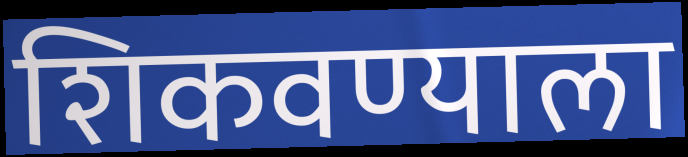
शिकवण्याला